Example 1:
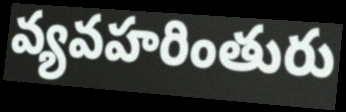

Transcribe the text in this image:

వ్యవహరింతురు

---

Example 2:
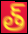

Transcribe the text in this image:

త్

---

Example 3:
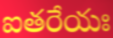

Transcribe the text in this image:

ఐతరేయః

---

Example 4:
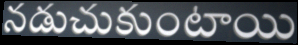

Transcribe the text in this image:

నడుచుకుంటాయి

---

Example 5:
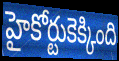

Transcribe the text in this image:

హైకోర్టుకెక్కింది